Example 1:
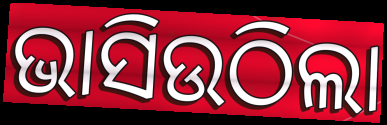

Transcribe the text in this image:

ଭାସିଉଠିଲା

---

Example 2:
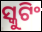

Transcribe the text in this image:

ସ୍କୁଟିଂ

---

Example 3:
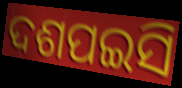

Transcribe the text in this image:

ଦଶପଇସି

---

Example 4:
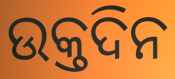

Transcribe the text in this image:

ଉକ୍ତଦିନ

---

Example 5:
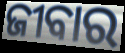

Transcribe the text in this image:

ଜୀବାର